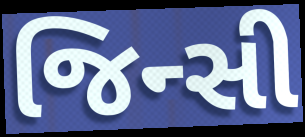
જિન્સી